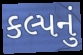
કલ્પનું